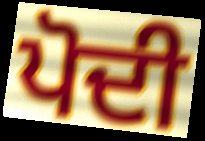
ਪੋਦੀ